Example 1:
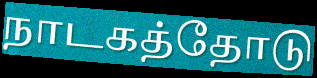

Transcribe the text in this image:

நாடகத்தோடு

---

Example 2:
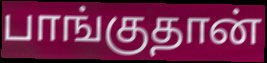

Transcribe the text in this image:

பாங்குதான்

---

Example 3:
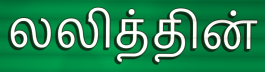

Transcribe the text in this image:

லலித்தின்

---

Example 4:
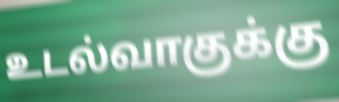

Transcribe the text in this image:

உடல்வாகுக்கு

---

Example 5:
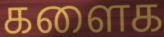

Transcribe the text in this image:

களைக